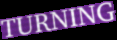
TURNING